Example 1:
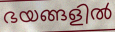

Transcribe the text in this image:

ഭയങ്ങളിൽ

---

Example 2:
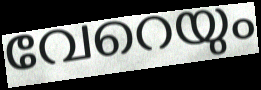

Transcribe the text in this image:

വേറെയും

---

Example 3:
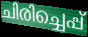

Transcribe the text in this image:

ചിരിച്ചെപ്പ്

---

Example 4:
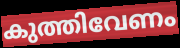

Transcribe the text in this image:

കുത്തിവേണം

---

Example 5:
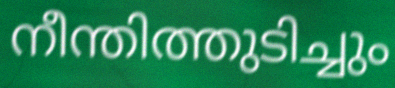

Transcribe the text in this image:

നീന്തിത്തുടിച്ചും